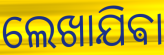
ଲେଖାଯିଵା